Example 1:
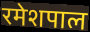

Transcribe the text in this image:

रमेशपाल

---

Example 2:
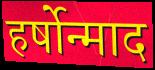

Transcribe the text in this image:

हर्षोन्माद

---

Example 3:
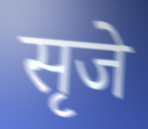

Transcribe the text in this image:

सृजे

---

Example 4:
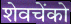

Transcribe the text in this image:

शेवचेंको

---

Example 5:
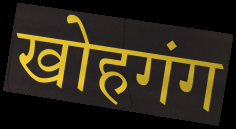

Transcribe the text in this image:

खोहगंग